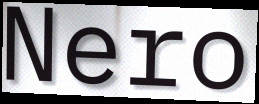
Nero